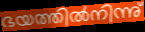
ഭയത്തിൽനിന്നു്